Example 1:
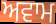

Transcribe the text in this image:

ਅਵਾਮ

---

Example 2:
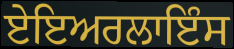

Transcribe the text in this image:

ਏਇਅਰਲਾਇੰਸ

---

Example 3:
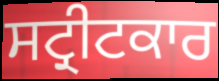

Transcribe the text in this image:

ਸਟ੍ਰੀਟਕਾਰ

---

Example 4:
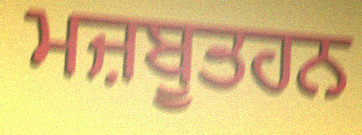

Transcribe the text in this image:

ਮਜ਼ਬੂਤਹਨ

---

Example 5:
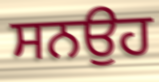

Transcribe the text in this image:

ਸਨਉਹ